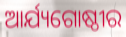
ଆର୍ଯ୍ୟଗୋଷ୍ଠୀର